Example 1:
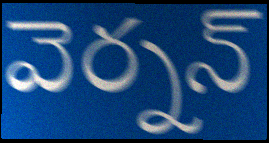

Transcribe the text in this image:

వెర్నన్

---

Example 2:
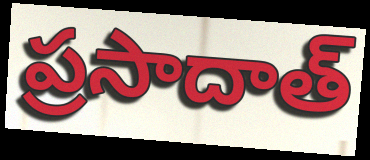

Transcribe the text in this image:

ప్రసాదాత్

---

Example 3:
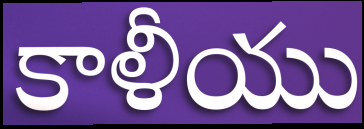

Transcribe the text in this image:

కాళీయు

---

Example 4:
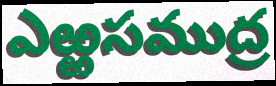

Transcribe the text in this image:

ఎఱ్ఱసముద్ర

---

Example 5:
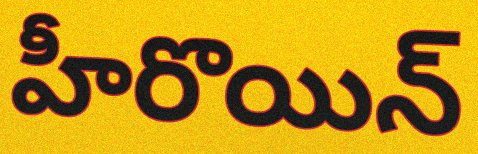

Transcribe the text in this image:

హీరొయిన్